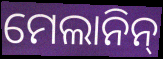
ମେଲାନିନ୍